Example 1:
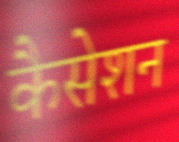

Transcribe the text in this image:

कैसेशन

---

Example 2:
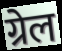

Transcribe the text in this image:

ग्रेल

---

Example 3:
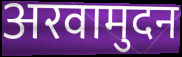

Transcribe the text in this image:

अरवामुदन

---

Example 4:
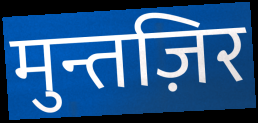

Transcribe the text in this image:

मुन्तज़िर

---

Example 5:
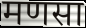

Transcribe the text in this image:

मणसा